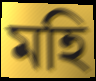
মহি